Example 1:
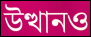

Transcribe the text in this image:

উত্থানও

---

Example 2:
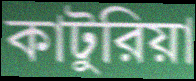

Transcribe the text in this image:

কাটুরিয়া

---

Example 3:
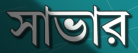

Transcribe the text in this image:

সাভার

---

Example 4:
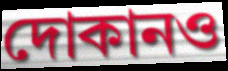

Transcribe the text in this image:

দোকানও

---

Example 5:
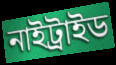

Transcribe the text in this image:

নাইট্রাইড